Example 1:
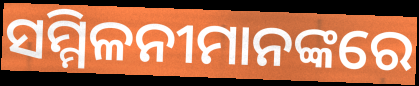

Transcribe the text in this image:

ସମ୍ମିଳନୀମାନଙ୍କରେ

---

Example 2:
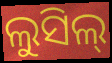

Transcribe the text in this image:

ଲୁସିଲ୍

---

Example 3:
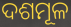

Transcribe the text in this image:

ଦଶମୂଳ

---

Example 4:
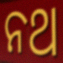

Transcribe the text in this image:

ନଥ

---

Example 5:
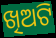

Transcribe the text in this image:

ଖିଅଟି